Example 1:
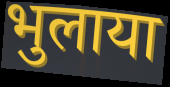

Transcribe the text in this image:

भुलाया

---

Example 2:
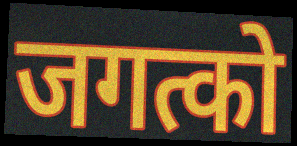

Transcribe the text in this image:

जगत्को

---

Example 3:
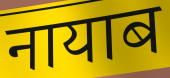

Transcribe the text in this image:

नायाब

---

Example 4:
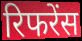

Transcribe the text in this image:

रिफरेंस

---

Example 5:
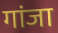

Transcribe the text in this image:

गांजा